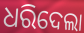
ଧରିଦେଲା